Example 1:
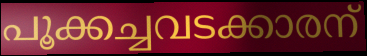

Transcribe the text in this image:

പൂക്കച്ചവടക്കാരന്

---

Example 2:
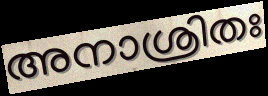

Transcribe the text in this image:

അനാശ്രിതഃ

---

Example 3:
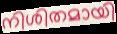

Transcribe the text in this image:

നിശിതമായി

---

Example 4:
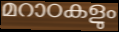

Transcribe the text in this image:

മറാഠകളും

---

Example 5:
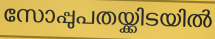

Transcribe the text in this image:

സോപ്പുപതയ്ക്കിടയിൽ